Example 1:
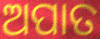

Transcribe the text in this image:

ଅପାତ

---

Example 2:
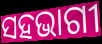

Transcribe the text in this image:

ସହଭାଗୀ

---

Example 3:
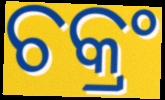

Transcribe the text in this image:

ଚକ୍ରଂ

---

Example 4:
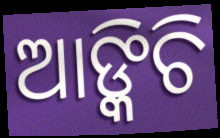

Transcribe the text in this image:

ଆଙ୍କିଚି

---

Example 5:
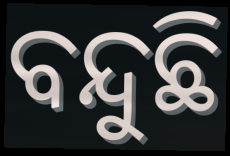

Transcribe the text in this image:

ବନ୍ଦୁଛି